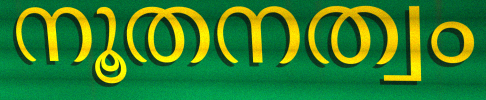
നൂതനത്വം